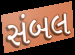
સંબલ